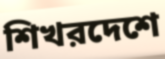
শিখরদেশে